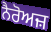
ਨੈਰੋਅਜ਼